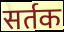
सर्तक